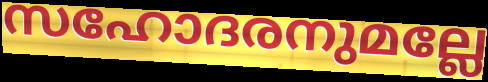
സഹോദരനുമല്ലേ